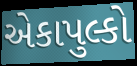
એકાપુલ્કો